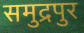
समुद्रपुर